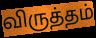
விருத்தம்